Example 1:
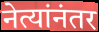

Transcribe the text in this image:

नेत्यांनंतर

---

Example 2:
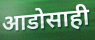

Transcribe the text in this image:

आडोसाही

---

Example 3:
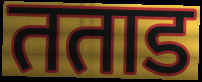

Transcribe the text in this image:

तताड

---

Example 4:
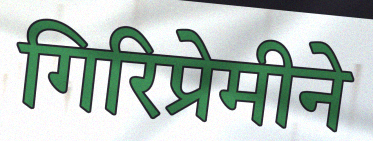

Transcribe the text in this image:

गिरिप्रेमीने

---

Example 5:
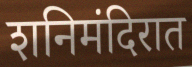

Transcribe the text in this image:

शनिमंदिरात